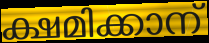
ക്ഷമിക്കാന്